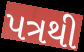
પત્રથી